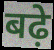
बढ़े